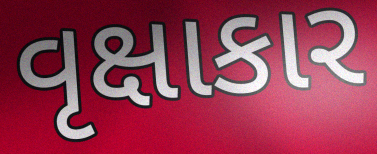
વૃક્ષાકાર